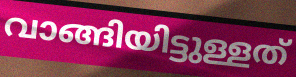
വാങ്ങിയിട്ടുള്ളത്